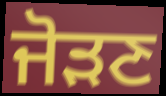
ਜੋੜਣ